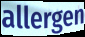
allergen